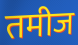
तमीज